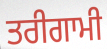
ਤਰੀਗਾਮੀ